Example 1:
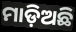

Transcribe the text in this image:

ମାଡ଼ିଅଛି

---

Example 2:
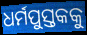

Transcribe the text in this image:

ଧର୍ମପୁସ୍ତକକୁ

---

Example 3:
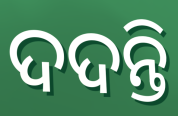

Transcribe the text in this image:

ଦଦନ୍ତି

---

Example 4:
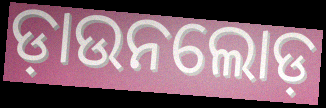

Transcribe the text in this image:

ଡ଼ାଉନଲୋଡ଼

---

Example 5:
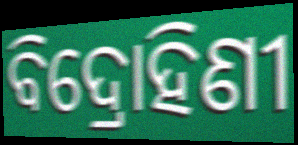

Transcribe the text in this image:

ବିଦ୍ରୋହିଣୀ